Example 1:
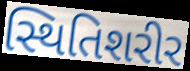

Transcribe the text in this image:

સ્થિતિશરીર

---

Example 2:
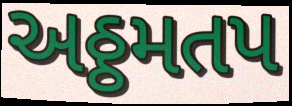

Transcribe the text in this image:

અઠ્ઠમતપ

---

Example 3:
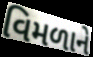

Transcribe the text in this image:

વિમળાને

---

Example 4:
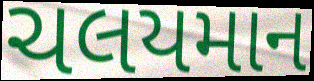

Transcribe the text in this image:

ચલયમાન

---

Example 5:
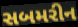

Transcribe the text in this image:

સબમરીન